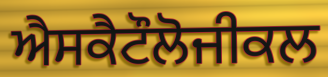
ਐਸਕੈਟੌਲੋਜੀਕਲ